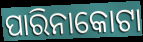
ପାରିନାକୋଟା